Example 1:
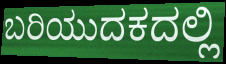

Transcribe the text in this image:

ಬರಿಯುದಕದಲ್ಲಿ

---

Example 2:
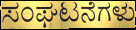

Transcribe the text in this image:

ಸಂಘಟನೆಗಳು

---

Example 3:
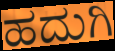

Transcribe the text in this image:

ಹದುಗಿ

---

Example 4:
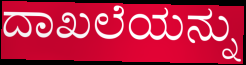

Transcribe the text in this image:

ದಾಖಲೆಯನ್ನು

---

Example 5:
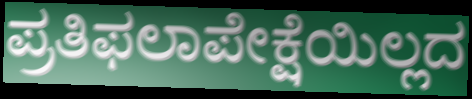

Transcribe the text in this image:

ಪ್ರತಿಫಲಾಪೇಕ್ಷೆಯಿಲ್ಲದ